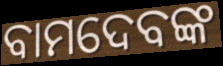
ବାମଦେବଙ୍କ